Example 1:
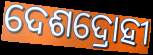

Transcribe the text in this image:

ଦେଶଦ୍ରୋହୀ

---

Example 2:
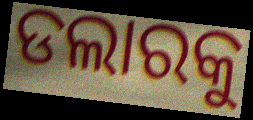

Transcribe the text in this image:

ଡଲାରକୁ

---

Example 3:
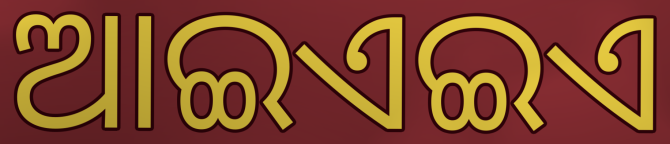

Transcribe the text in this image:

ଆଇଏଇଏ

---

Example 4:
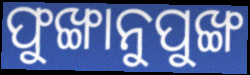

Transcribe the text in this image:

ଫୁଙ୍ଖାନୁପୁଙ୍ଖ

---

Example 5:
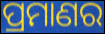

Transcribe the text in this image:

ପ୍ରମାଣର